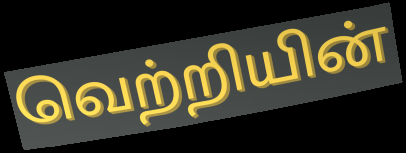
வெற்றியின்